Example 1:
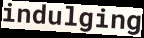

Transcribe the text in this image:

indulging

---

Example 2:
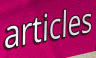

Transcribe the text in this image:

articles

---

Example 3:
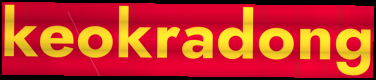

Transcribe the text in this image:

keokradong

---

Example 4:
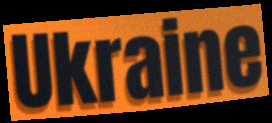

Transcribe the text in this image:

Ukraine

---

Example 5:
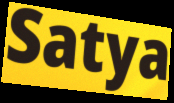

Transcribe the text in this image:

Satya